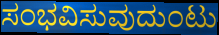
ಸಂಭವಿಸುವುದುಂಟು